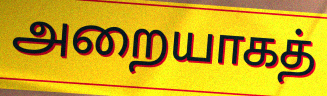
அறையாகத்